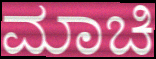
ಮಾಚಿ